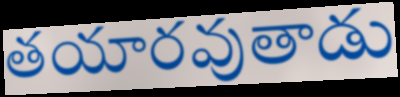
తయారవుతాడు